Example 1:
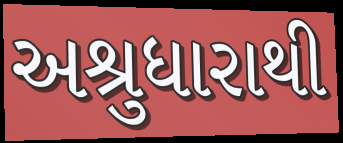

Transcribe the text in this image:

અશ્રુધારાથી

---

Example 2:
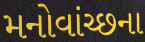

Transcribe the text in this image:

મનોવાંચ્છના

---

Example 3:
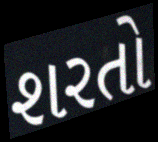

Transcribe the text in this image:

શરતો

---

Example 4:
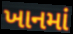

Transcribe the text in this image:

ખાનમાં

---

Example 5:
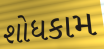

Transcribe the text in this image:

શોધકામ